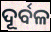
ଦୂର୍ବଳ